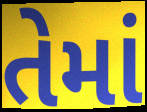
તેમાં